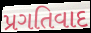
પ્રગતિવાદ